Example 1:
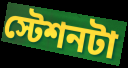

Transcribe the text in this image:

স্টেশনটা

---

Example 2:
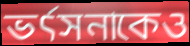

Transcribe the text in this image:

ভর্ৎসনাকেও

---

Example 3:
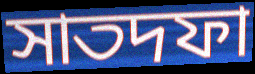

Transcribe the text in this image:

সাতদফা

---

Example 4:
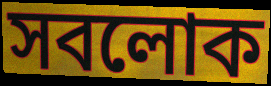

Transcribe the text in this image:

সবলোক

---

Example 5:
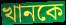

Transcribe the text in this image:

খানকে